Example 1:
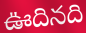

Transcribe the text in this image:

ఊదినది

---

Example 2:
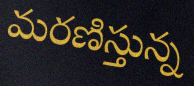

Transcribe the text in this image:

మరణిస్తున్న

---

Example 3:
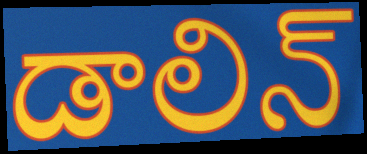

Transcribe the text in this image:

డాలిన్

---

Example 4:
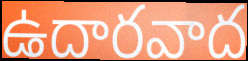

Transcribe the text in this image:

ఉదారవాద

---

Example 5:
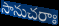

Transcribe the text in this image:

సానుచరాః